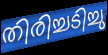
തിരിച്ചടിച്ചു